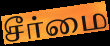
சீர்மை